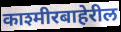
काश्मीरबाहेरील